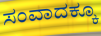
ಸಂವಾದಕ್ಕೂ